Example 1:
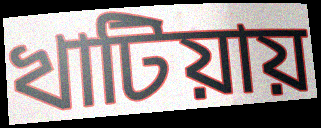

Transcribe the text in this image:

খাটিয়ায়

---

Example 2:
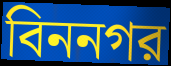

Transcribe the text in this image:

বিননগর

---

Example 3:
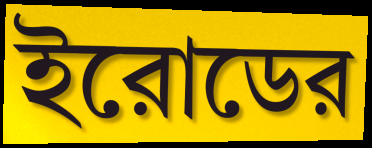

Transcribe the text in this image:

ইরোডের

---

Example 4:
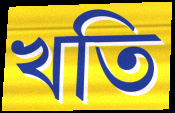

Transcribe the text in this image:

খতি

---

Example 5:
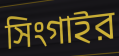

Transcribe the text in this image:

সিংগাইর